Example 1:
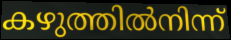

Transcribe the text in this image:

കഴുത്തിൽനിന്ന്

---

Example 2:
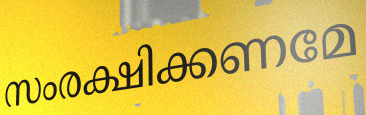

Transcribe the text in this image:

സംരക്ഷിക്കണമേ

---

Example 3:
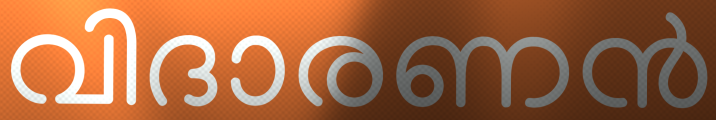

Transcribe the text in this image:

വിദാരണൻ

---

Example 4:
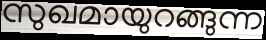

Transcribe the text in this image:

സുഖമായുറങ്ങുന്ന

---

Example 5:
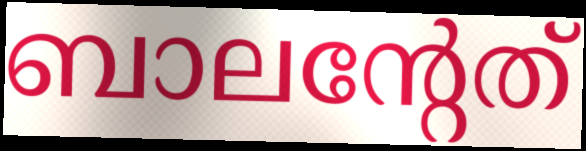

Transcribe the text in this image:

ബാലന്റേത്